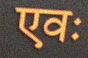
एवः